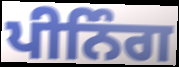
ਪੀਨਿੰਗ